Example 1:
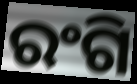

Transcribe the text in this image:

ରଂଗି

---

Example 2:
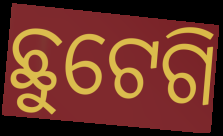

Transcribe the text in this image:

ଛୁଟେଗି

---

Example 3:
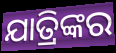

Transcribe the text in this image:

ଯାତ୍ରିଙ୍କର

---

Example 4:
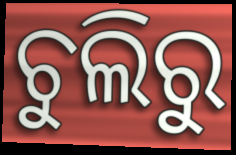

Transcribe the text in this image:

ଚୁଲିରୁ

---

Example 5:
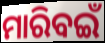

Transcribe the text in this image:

ମାରିବଇଁ